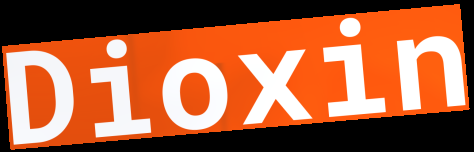
Dioxin